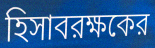
হিসাবরক্ষকের